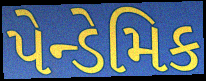
પેન્ડેમિક